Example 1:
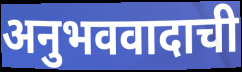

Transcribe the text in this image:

अनुभववादाची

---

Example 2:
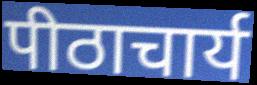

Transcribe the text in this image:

पीठाचार्य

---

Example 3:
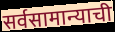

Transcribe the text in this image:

सर्वसामान्याची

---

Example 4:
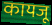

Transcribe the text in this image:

कायजू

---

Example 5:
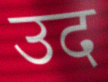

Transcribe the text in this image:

उद